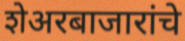
शेअरबाजारांचे